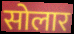
सोलार